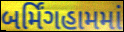
બર્મિંગહામમાં